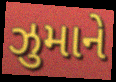
ઝુમાને